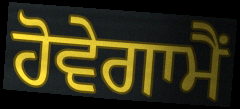
ਹੋਵੇਗਾਮੈਂ